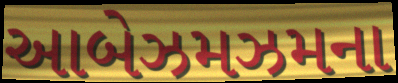
આબેઝમઝમના